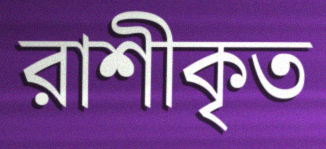
রাশীকৃত